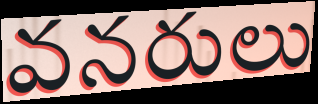
వనరులు